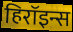
हिरॉइन्स